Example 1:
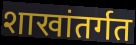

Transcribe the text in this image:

शाखांतर्गत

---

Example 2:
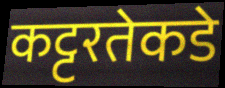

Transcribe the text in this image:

कट्टरतेकडे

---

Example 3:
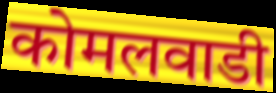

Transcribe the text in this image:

कोमलवाडी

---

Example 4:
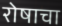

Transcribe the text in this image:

रोषाचा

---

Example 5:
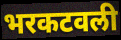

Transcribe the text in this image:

भरकटवली